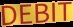
DEBIT